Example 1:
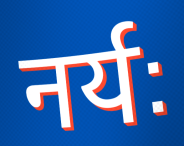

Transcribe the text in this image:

नर्यः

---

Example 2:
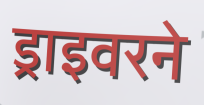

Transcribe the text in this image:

ड्राइवरने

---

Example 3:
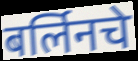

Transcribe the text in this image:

बर्लिनचे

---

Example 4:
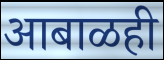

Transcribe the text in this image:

आबाळही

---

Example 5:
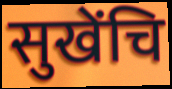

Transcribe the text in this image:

सुखेंचि